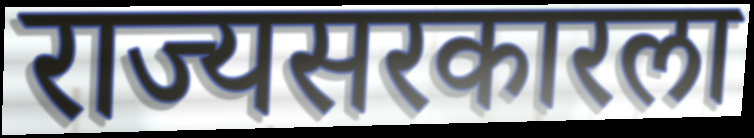
राज्यसरकारला